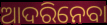
ଆଦରିନେବା